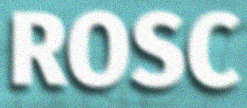
ROSC